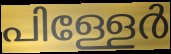
പിള്ളേർ